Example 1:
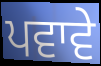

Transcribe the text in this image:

ਪਵਾਵੇ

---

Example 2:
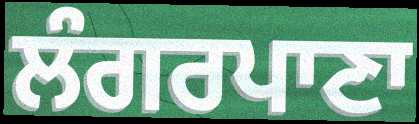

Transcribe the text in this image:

ਲੰਗਰਪਾਣਾ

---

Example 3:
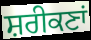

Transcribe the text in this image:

ਸ਼ਰੀਕਣਾਂ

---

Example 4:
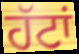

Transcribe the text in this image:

ਹੱਟਾਂ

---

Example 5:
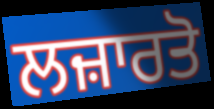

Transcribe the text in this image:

ਲਜ਼ਾਰਤੋ